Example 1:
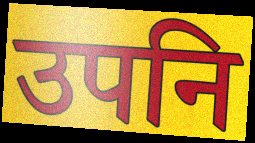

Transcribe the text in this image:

उपनि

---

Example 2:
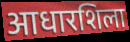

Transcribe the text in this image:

आधारशिला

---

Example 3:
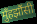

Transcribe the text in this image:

मुँहझौंसी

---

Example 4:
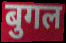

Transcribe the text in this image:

बुगल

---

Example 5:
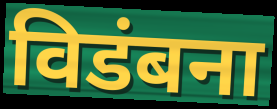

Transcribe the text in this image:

विडंबना